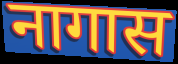
नागास